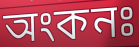
অংকনঃ